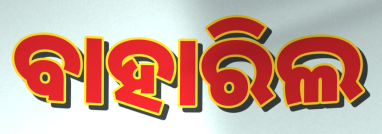
ବାହାରିଲ